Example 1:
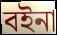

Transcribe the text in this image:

বইনা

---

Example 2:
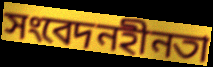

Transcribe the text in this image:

সংবেদনহীনতা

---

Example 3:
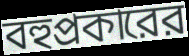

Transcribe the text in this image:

বহুপ্রকারের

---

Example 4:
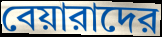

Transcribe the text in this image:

বেয়ারাদের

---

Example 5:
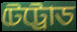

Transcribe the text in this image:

টেট্রোড